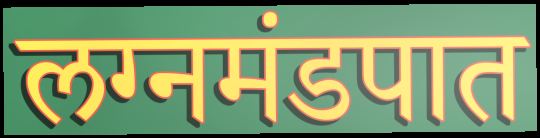
लग्नमंडपात